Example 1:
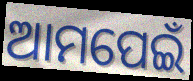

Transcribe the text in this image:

ଆମପେଇଁ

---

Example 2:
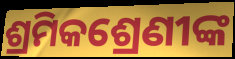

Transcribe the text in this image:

ଶ୍ରମିକଶ୍ରେଣୀଙ୍କ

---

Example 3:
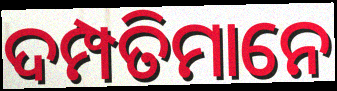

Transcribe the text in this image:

ଦମ୍ପତିମାନେ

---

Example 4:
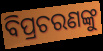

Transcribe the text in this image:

ବିପ୍ରଚରଣଙ୍କୁ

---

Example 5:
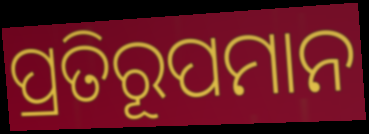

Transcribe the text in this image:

ପ୍ରତିରୂପମାନ